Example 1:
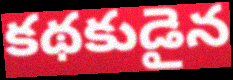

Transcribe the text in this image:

కథకుడైన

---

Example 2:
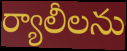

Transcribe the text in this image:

ర్యాలీలను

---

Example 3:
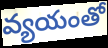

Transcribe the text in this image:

వ్యయంతో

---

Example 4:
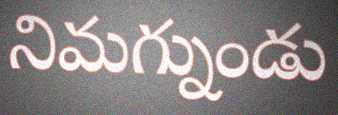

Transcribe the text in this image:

నిమగ్నుండు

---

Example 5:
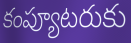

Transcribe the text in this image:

కంప్యూటరుకు